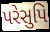
પરેસુપિ